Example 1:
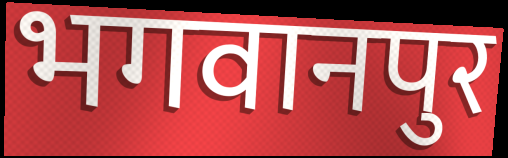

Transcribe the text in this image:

भगवानपुर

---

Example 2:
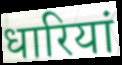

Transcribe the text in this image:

धारियां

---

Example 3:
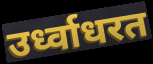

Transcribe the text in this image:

उर्ध्वाधरत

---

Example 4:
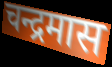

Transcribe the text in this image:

चन्द्रमास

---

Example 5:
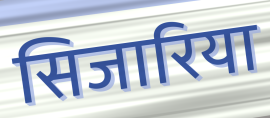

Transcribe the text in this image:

सिजारिया